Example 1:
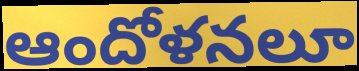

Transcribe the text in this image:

ఆందోళనలూ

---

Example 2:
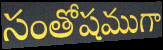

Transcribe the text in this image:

సంతోషముగా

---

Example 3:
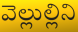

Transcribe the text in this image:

వెల్లుల్లిని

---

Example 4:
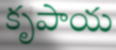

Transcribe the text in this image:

కృపాయ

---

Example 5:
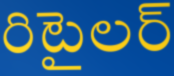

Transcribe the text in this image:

రిటైలర్